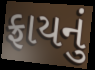
ફ્રાયનું